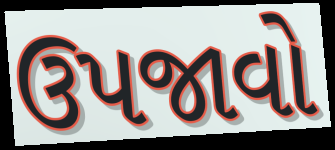
ઉપજાવો